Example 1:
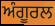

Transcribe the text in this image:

ਅੰਗੂਰਲ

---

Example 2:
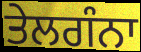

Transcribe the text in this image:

ਤੇਲਗੰਨਾ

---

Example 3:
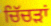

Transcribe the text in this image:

ਚਿੱਚੜਾਂ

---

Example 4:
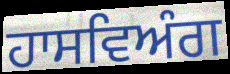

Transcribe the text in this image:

ਹਾਸਵਿਅੰਗ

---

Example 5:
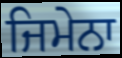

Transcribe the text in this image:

ਜਿਮੇਨਾ